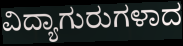
ವಿದ್ಯಾಗುರುಗಳಾದ